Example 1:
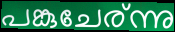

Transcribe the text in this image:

പങ്കുചേര്ന്നു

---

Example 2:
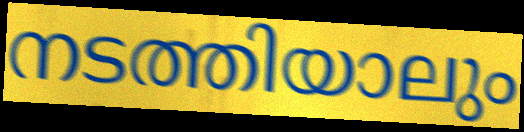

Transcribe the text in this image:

നടത്തിയാലും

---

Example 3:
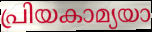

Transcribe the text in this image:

പ്രിയകാമ്യയാ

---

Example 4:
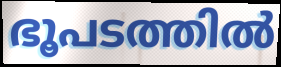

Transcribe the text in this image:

ഭൂപടത്തിൽ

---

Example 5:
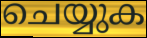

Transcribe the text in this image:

ചെയ്യുക